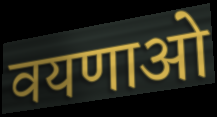
वयणाओ